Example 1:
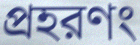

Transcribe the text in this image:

প্রহরণং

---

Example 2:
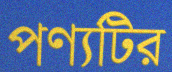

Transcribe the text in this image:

পণ্যটির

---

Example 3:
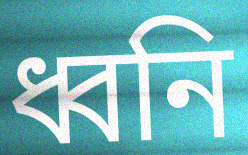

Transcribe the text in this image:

ধ্বনি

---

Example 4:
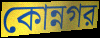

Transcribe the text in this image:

কোন্নগর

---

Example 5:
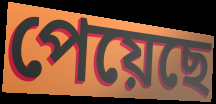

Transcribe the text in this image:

পেয়েছে